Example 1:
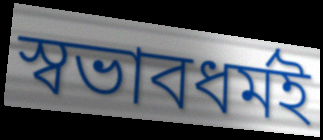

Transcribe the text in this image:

স্বভাবধর্মই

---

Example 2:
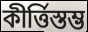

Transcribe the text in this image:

কীর্ত্তিস্তম্ভ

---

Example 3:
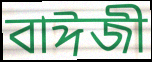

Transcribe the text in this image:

বাঈজী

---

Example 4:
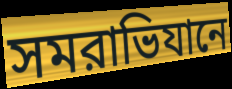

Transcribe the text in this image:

সমরাভিযানে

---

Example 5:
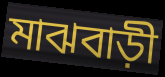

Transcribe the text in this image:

মাঝবাড়ী